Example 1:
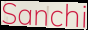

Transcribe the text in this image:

Sanchi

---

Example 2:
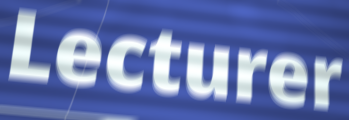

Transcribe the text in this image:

Lecturer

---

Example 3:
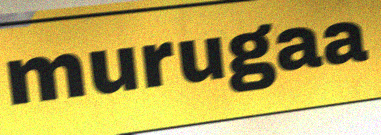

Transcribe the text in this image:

murugaa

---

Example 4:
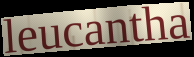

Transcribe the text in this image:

leucantha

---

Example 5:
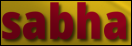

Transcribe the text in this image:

sabha